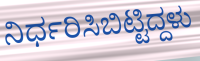
ನಿರ್ಧರಿಸಿಬಿಟ್ಟಿದ್ದಳು